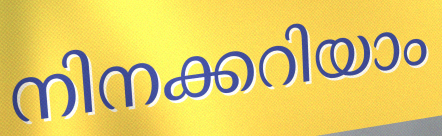
നിനക്കറിയാം